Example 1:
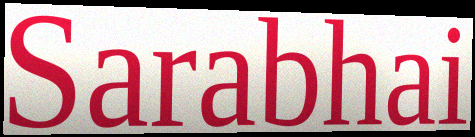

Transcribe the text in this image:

Sarabhai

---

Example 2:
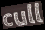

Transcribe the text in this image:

cull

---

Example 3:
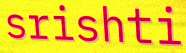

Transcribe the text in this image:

srishti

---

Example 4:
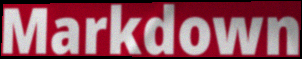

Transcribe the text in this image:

Markdown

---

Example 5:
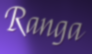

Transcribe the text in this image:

Ranga